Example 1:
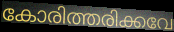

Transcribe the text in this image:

കോരിത്തരിക്കവേ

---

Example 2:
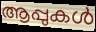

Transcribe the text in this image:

ആപ്പുകൾ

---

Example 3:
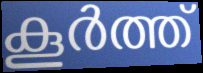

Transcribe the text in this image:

കൂർത്ത്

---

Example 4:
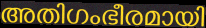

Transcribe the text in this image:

അതിഗംഭീരമായി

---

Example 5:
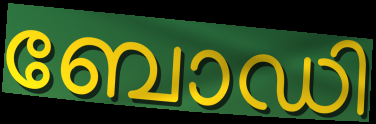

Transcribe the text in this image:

ബോഡി